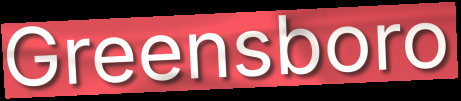
Greensboro